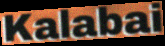
Kalabai